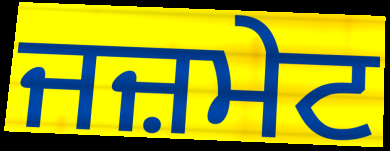
ਜਜ਼ਮੇਟ